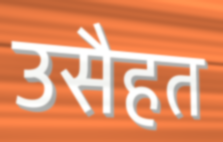
उसैहत